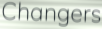
Changers